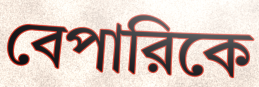
বেপারিকে